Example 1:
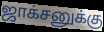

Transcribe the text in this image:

ஜாக்சனுக்கு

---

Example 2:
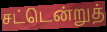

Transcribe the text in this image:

சட்டென்றுத்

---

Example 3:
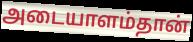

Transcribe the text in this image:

அடையாளம்தான்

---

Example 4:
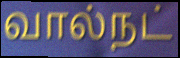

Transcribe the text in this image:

வால்நட்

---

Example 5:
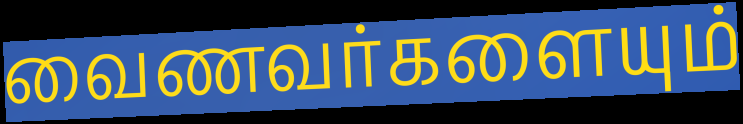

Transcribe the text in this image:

வைணவர்களையும்